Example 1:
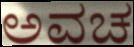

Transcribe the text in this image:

ಅವಚ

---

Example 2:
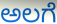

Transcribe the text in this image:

ಅಲಗೆ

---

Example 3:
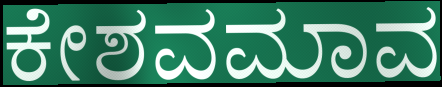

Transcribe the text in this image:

ಕೇಶವಮಾವ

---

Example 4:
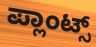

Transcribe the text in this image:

ಪ್ಲಾಂಟ್ಸ್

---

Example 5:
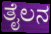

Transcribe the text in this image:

ತೈಲನ